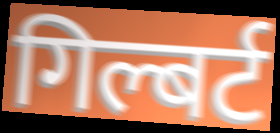
गिल्बर्ट